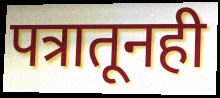
पत्रातूनही